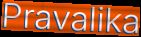
Pravalika